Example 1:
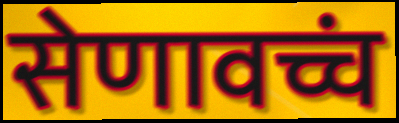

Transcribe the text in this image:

सेणावच्चं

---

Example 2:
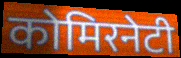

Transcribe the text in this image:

कोमिरनेटी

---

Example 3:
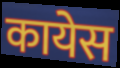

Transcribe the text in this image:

कायेस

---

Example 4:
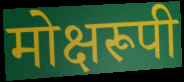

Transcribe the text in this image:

मोक्षरूपी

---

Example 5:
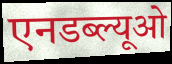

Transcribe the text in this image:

एनडब्ल्यूओ